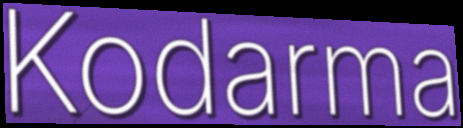
Kodarma